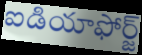
ఐడియాఫోర్జ్